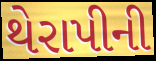
થેરાપીની